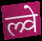
ल्वे